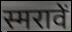
स्मरावें